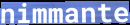
nimmante